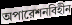
অপারেশনবিহীন